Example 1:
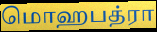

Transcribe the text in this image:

மொஹபத்ரா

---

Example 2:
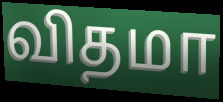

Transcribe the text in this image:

விதமா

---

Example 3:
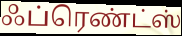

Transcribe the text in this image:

ஃப்ரெண்ட்ஸ்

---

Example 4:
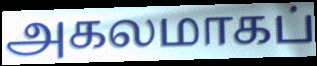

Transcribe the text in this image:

அகலமாகப்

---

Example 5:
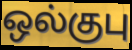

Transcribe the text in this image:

ஒல்குபு